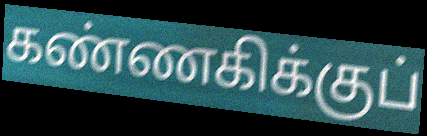
கண்ணகிக்குப்